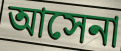
আসেনা